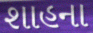
શાહના